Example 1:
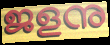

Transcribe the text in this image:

ജളനു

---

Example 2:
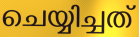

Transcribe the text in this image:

ചെയ്യിച്ചത്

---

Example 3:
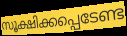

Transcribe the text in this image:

സൂക്ഷിക്കപ്പെടേണ്ട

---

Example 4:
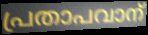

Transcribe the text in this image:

പ്രതാപവാന്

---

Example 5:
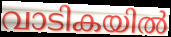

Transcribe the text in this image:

വാടികയിൽ